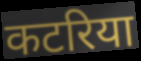
कटरिया